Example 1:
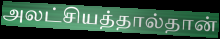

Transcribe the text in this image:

அலட்சியத்தால்தான்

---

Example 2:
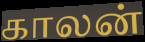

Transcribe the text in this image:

காலன்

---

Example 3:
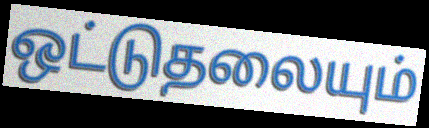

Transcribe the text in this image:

ஒட்டுதலையும்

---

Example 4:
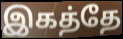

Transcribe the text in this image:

இகத்தே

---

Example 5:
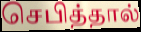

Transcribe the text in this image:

செபித்தால்